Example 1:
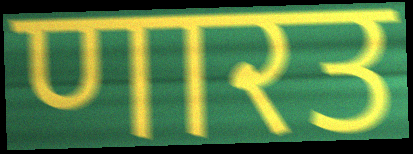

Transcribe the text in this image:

णारउ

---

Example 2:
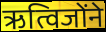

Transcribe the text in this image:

ऋत्विजोंने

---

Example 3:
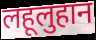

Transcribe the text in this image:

लहूलुहान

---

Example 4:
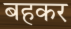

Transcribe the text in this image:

बहकर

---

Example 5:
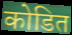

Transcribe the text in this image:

कोडित